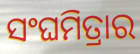
ସଂଘମିତ୍ରାର